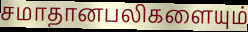
சமாதானபலிகளையும்